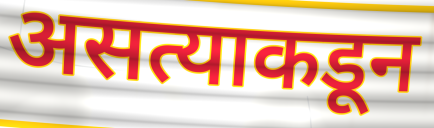
असत्याकडून